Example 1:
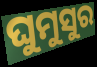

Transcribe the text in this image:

ଘୁମୁସୁର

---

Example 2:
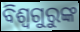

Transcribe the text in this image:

ବିଶ୍ୱଗୁରୁଙ୍କ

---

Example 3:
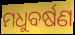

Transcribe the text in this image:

ମଧୁବର୍ଷଣ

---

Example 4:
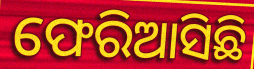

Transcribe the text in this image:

ଫେରିଆସିଛି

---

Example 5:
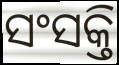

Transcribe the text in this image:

ସଂସକ୍ତି